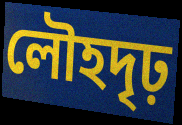
লৌহদৃঢ়